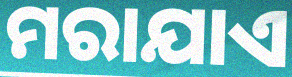
ମରାଯାଏ